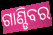
ଗାଣ୍ଡିବର